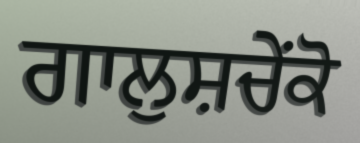
ਗਾਲੁਸ਼ਚੇਂਕੋ